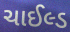
ચાઈલ્ડ